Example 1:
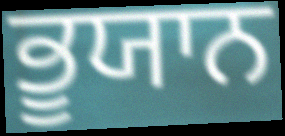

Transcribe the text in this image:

ਭੂਯਾਨ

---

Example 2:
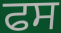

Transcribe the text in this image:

ਫਸ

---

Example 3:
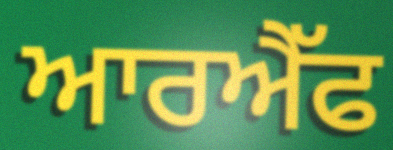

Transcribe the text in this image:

ਆਰਐੱਫ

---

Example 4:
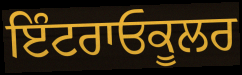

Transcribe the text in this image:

ਇੰਟਰਾਓਕੂਲਰ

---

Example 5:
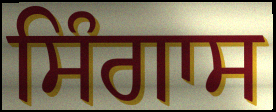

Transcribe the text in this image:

ਸਿੰਗਾਸ